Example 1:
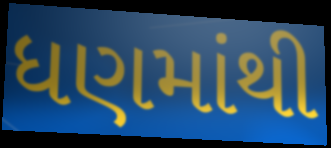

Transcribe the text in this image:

ધણમાંથી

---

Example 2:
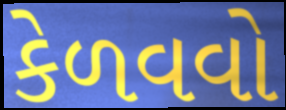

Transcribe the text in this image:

કેળવવો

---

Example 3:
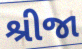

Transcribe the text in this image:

શ્રીજા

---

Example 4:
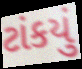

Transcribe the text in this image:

ટાંકયું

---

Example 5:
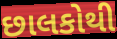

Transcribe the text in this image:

છાલકોથી